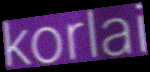
korlai